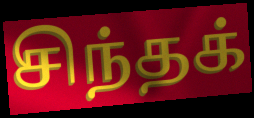
சிந்தக்